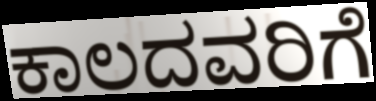
ಕಾಲದವರಿಗೆ